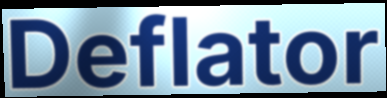
Deflator